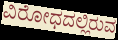
ವಿರೋಧದಲ್ಲಿರುವ